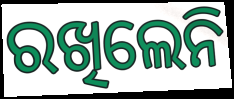
ରଖିଲେନି